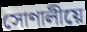
সোণালীয়ে